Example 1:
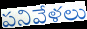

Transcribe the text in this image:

పనివేళలు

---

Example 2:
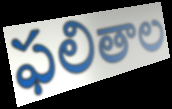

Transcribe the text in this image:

ఫలితాల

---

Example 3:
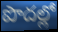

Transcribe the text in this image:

పొదల్లో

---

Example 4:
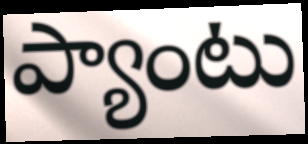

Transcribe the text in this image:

ప్యాంటు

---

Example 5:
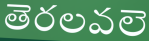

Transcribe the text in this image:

తెరలవలె